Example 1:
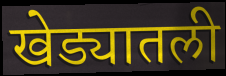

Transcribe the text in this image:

खेड्यातली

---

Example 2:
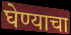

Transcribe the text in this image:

घेण्याचा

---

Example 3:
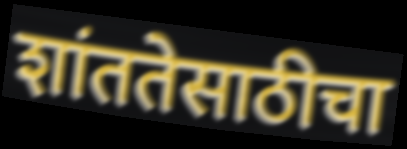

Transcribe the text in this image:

शांततेसाठीचा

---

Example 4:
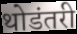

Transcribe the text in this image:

थोडंतरी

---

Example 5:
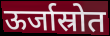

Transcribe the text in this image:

ऊर्जास्रोत